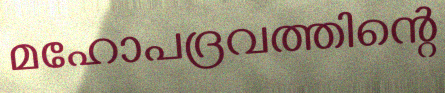
മഹോപദ്രവത്തിന്റെ